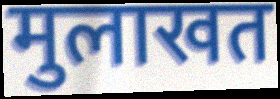
मुलाखत